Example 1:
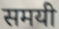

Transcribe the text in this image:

समयी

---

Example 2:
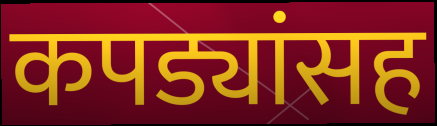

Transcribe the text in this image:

कपड्यांसह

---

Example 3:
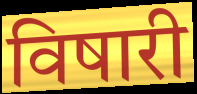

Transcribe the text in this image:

विषारी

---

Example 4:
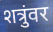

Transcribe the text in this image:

शत्रुंवर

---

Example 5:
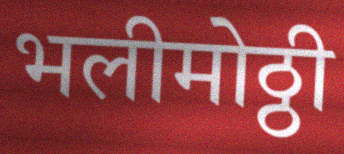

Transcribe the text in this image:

भलीमोठ्ठी